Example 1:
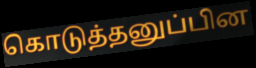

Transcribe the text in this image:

கொடுத்தனுப்பின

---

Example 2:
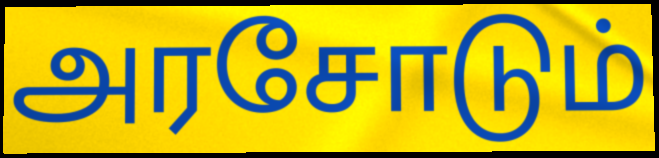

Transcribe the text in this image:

அரசோடும்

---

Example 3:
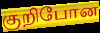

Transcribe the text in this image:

குறிபோன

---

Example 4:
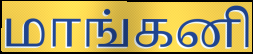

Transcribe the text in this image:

மாங்கனி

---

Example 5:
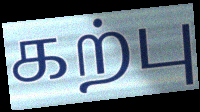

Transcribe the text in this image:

கற்பு